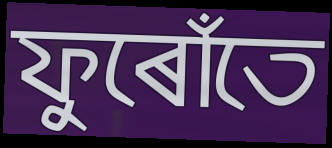
ফুৰোঁতে